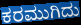
ಕರಮುಗಿದು